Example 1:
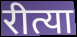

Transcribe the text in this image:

रीत्या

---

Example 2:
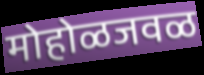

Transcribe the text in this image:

मोहोळजवळ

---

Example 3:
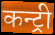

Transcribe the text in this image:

कन्ट्री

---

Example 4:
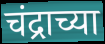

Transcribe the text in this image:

चंद्राच्या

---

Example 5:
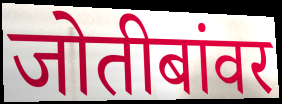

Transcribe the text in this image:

जोतीबांवर